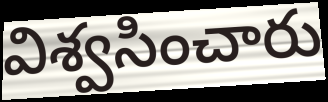
విశ్వసించారు